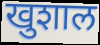
खुशाल